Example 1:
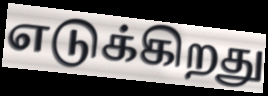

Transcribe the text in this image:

எடுக்கிறது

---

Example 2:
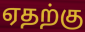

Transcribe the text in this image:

ஏதற்கு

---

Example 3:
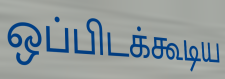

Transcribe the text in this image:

ஒப்பிடக்கூடிய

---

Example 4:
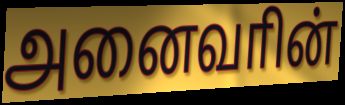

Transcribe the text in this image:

அனைவரின்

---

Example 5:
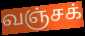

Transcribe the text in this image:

வஞ்சக்